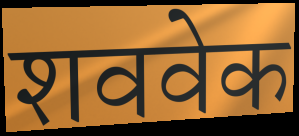
शववेक